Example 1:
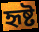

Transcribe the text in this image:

হৃষ্ট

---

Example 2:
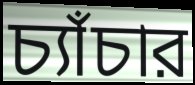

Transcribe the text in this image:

চ্যাঁচার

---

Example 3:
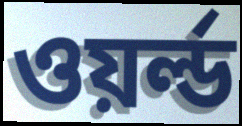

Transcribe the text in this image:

ওয়র্ল্ড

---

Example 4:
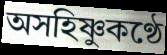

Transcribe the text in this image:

অসহিষ্ণুকণ্ঠে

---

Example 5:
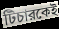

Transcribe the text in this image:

টিচারকেই